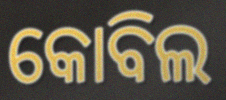
କୋବିଲ